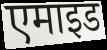
एमाइड